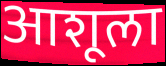
आशूला